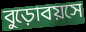
বুড়োবয়সে